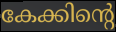
കേക്കിന്റെ